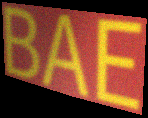
BAE